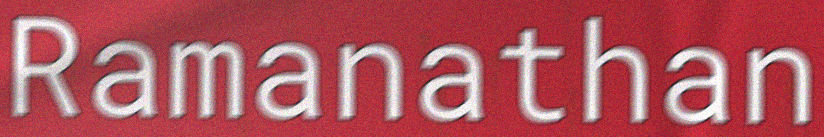
Ramanathan